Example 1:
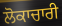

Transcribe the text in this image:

ਲੋਕਾਚਾਰੀ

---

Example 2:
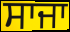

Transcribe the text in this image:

ਸਾਜਾ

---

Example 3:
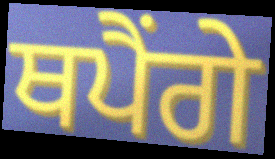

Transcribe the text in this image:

ਥਪੈਂਗੇ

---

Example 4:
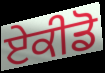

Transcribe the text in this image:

ਏਕੀਡੋ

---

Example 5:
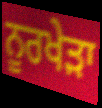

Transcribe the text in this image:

ਨੂਰਖੇੜਾ